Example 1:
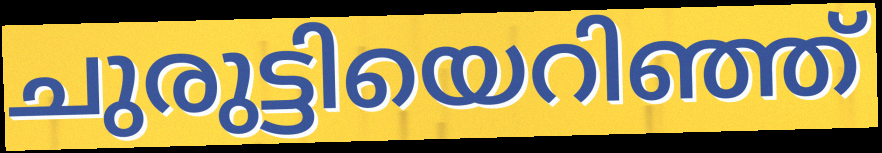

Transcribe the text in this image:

ചുരുട്ടിയെറിഞ്ഞ്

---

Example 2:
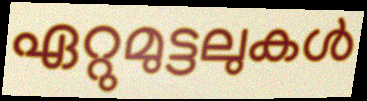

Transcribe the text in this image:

ഏറ്റുമുട്ടലുകൾ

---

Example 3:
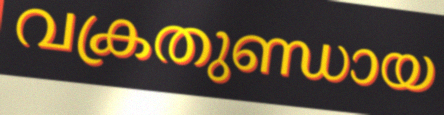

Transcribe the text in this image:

വക്രതുണ്ഡായ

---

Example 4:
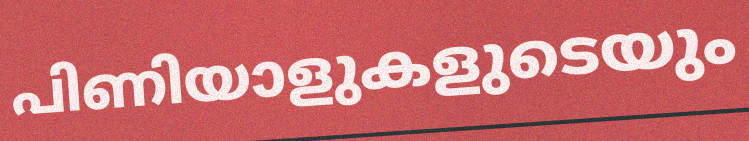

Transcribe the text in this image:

പിണിയാളുകളുടെയും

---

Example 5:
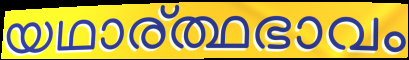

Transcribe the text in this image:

യഥാര്ത്ഥഭാവം